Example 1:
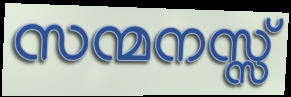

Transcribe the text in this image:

സന്മനസ്സ്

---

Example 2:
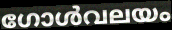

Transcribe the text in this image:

ഗോൾവലയം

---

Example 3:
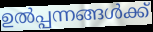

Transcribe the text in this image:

ഉൽപ്പന്നങ്ങൾക്ക്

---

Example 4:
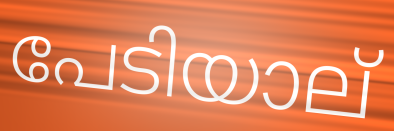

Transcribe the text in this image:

പേടിയാല്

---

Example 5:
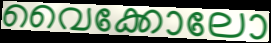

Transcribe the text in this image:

വൈക്കോലോ